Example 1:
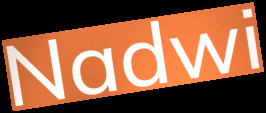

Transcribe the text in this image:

Nadwi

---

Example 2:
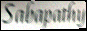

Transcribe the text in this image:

Sabapathy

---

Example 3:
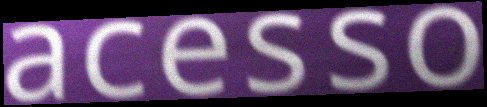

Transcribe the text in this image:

acesso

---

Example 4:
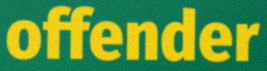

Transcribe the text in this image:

offender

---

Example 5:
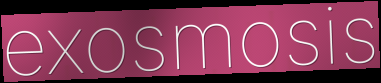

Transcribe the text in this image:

exosmosis